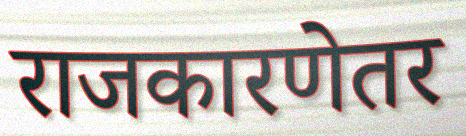
राजकारणेतर